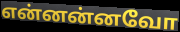
என்னன்னவோ